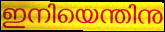
ഇനിയെന്തിനു